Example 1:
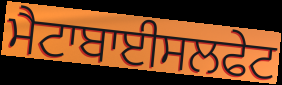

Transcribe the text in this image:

ਮੈਟਾਬਾਈਸਲਫੇਟ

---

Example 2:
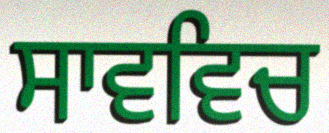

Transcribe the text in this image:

ਸਾਵਵਿਚ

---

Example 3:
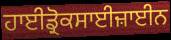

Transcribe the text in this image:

ਹਾਈਡ੍ਰੋਕਸਾਈਜ਼ਾਈਨ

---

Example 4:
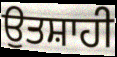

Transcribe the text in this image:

ਉਤਸ਼ਾਹੀ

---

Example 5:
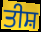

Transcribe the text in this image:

ਤੀਸ਼